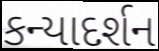
કન્યાદર્શન